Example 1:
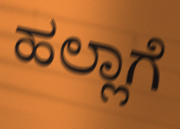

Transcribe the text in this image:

ಹಲ್ಲಾಗೆ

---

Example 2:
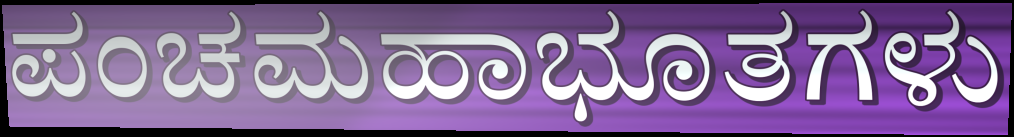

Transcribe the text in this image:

ಪಂಚಮಹಾಭೂತಗಳು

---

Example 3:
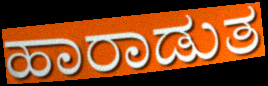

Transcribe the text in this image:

ಹಾರಾಡುತ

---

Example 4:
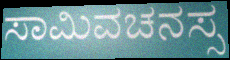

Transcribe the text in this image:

ಸಾಮಿವಚನಸ್ಸ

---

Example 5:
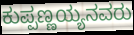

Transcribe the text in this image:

ಕುಪ್ಪಣ್ಣಯ್ಯನವರು